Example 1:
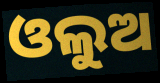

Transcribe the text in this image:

ଓଲୁଅ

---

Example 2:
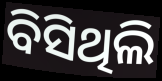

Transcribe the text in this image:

ବିସିଥିଲି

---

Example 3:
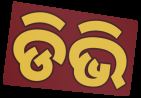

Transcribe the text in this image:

ଡିଭି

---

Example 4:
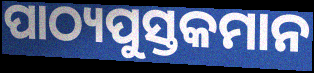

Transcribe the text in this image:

ପାଠ୍ୟପୁସ୍ତକମାନ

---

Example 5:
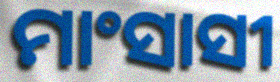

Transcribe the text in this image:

ମାଂସାସୀ